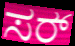
ಸರ‍್